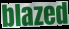
blazed